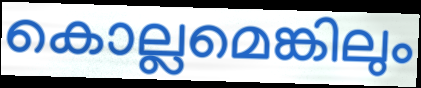
കൊല്ലമെങ്കിലും